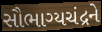
સૌભાગ્યચંદ્રને